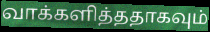
வாக்களித்ததாகவும்